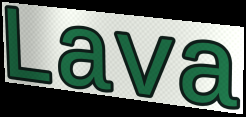
Lava